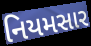
નિયમસાર